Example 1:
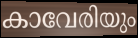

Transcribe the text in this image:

കാവേരിയും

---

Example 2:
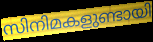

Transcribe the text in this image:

സിനിമകളുണ്ടായി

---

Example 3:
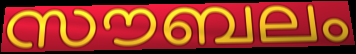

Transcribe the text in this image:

സൗബലം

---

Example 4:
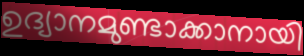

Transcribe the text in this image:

ഉദ്യാനമുണ്ടാക്കാനായി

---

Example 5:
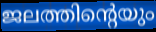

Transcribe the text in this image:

ജലത്തിന്റെയും